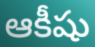
ఆకీషు